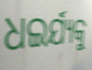
ଧଇର୍ଯ୍ୟକୁ